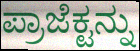
ಪ್ರಾಜೆಕ್ಟನ್ನು